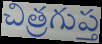
చిత్రగుప్త